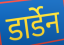
डार्डेन